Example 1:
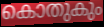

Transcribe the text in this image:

കൊതുകും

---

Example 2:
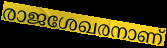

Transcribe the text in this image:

രാജശേഖരനാണ്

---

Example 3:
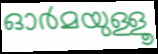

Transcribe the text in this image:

ഓർമയുള്ളൂ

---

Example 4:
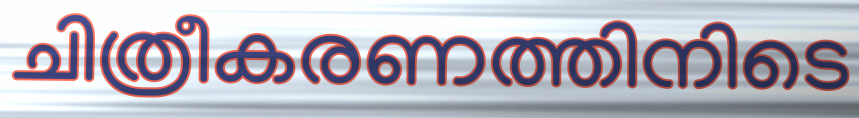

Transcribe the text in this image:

ചിത്രീകരണത്തിനിടെ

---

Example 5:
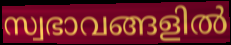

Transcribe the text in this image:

സ്വഭാവങ്ങളിൽ